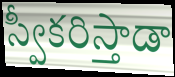
స్వీకరిస్తాడా